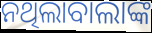
ନଥିଲାବାଲାଙ୍କ